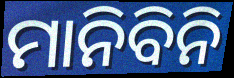
ମାନିବିନି